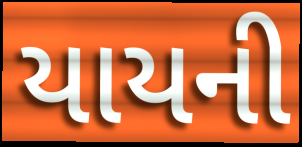
યાયની